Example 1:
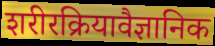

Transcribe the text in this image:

शरीरक्रियावैज्ञानिक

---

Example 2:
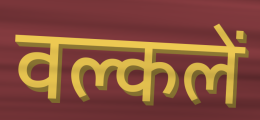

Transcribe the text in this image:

वल्कलें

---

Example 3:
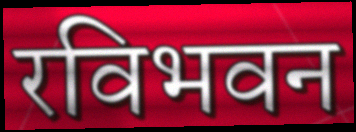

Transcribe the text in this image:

रविभवन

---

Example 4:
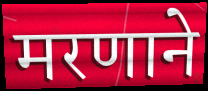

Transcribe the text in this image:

मरणाने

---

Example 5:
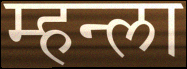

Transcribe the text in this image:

म्हन्ला